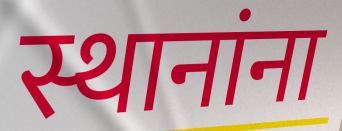
स्थानांना